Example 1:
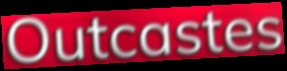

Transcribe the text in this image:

Outcastes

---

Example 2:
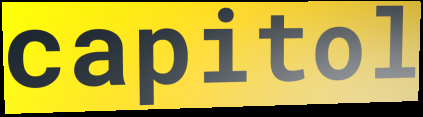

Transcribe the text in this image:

capitol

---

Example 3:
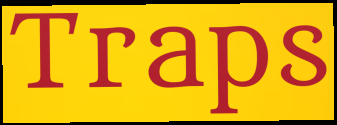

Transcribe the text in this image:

Traps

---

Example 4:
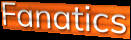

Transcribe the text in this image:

Fanatics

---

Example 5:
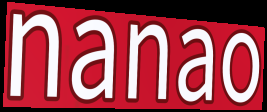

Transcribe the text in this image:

nanao